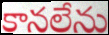
కానలేను